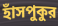
হাঁসপুকুর